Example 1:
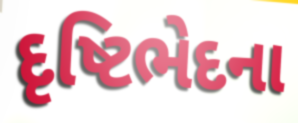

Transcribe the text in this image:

દૃષ્ટિભેદના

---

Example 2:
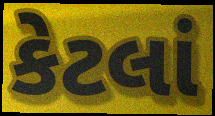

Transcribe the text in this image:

કેટલાં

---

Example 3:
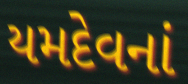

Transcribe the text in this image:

યમદેવનાં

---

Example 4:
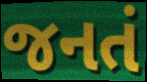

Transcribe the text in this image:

જનતં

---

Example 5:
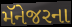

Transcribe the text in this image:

મૅનેજરના